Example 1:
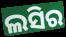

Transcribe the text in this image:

ଲସିର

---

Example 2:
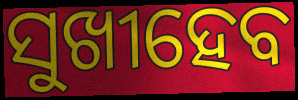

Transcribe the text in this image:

ସୁଖୀହେବ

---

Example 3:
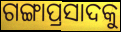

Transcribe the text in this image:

ଗଙ୍ଗାପ୍ରସାଦକୁ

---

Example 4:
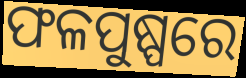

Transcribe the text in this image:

ଫଳପୁଷ୍ପରେ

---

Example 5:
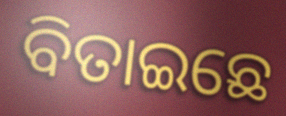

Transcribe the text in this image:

ବିତାଇଛେ